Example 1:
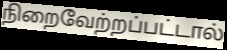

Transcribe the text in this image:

நிறைவேற்றப்பட்டால்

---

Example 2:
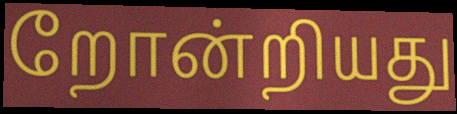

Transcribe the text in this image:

றோன்றியது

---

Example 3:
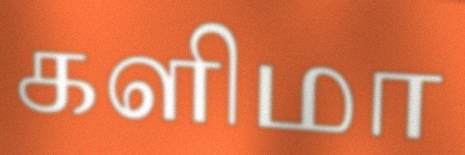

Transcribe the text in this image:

களிமா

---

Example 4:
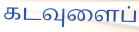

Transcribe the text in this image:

கடவுளைப்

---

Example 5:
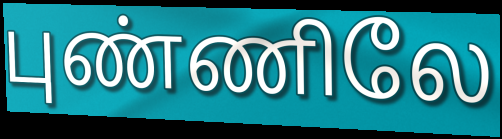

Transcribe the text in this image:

புண்ணிலே